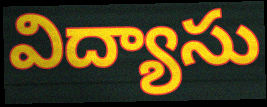
విద్యాసు